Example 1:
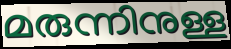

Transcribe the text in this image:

മരുന്നിനുള്ള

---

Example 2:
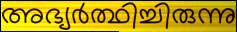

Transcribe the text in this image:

അഭ്യർത്ഥിച്ചിരുന്നു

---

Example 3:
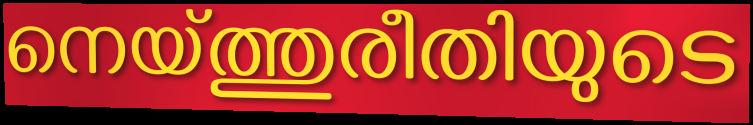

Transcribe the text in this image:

നെയ്ത്തുരീതിയുടെ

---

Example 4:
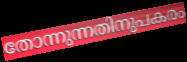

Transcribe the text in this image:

തോന്നുന്നതിനുപകരം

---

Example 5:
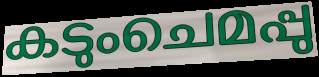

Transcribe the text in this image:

കടുംചെമപ്പു